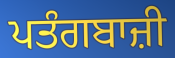
ਪਤੰਗਬਾਜ਼ੀ